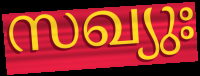
സഖ്യുഃ